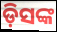
ଡ଼ିସଙ୍କ